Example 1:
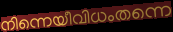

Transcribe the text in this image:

നിന്നെയീവിധംതന്നെ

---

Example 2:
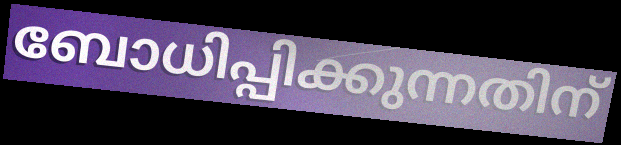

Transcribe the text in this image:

ബോധിപ്പിക്കുന്നതിന്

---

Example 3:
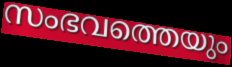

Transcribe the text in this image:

സംഭവത്തെയും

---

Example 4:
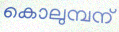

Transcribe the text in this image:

കൊലുമ്പന്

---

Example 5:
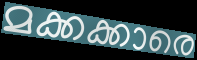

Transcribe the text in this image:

മക്കക്കാരെ